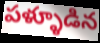
పళ్ళూడిన